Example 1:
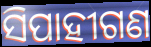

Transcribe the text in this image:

ସିପାହୀଗଣ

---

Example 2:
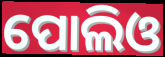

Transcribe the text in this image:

ପୋଲିଓ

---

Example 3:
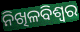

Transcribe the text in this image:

ନିଖିଳବିଶ୍ୱର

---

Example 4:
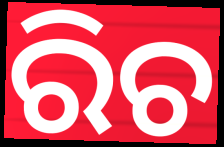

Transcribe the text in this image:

ରିଚ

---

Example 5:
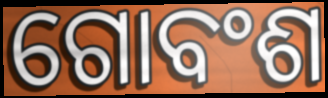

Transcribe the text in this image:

ଗୋବଂଶ